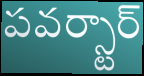
పవర్స్టార్